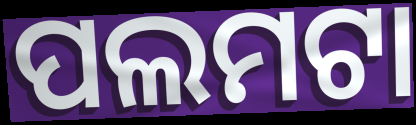
ପଲମଟା